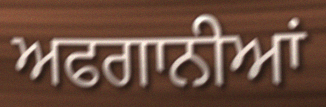
ਅਫਗਾਨੀਆਂ